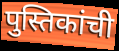
पुस्तिकांची